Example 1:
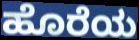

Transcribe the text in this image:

ಹೊರೆಯ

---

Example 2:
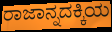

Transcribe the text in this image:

ರಾಜಾನ್ನದಕ್ಕಿಯ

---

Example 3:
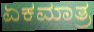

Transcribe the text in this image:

ಏಕಮಾತ್ರ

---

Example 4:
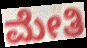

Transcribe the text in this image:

ಮೇತಿ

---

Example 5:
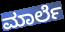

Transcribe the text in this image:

ಮಾರ್ಲೆ